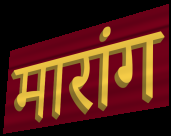
मारांग